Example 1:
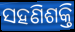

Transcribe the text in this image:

ସହଣିଶକ୍ତି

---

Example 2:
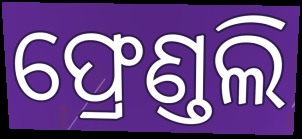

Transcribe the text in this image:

ଫ୍ରେଣ୍ଡଲି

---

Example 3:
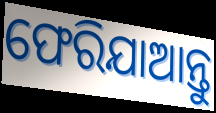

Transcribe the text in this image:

ଫେରିଯାଆନ୍ତୁ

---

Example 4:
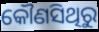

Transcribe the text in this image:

କୌଣସିଥିରୁ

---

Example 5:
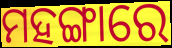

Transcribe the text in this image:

ମହଙ୍ଗାରେ